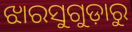
ଝାରସୁଗୁଡ଼ାରୁ